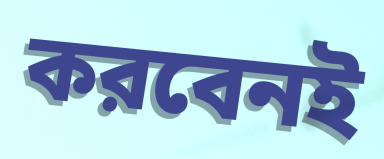
করবেনই